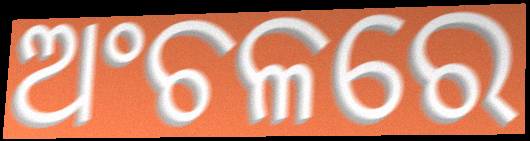
ଅଂଚଳରେ